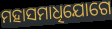
ମହାସମାଧିଯୋଗେ